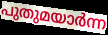
പുതുമയാർന്ന